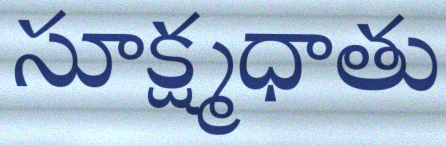
సూక్ష్మధాతు